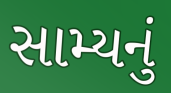
સામ્યનું